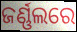
ଜର୍ଣ୍ଣଲରେ